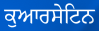
ਕੁਆਰਸੇਟਿਨ